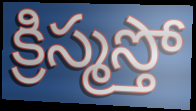
క్రిస్మస్తో